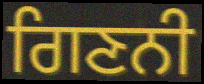
ਗਿਣਨੀ